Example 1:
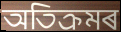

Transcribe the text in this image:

অতিক্ৰমৰ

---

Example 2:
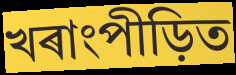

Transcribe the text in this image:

খৰাংপীড়িত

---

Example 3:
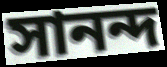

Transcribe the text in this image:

সানন্দ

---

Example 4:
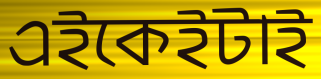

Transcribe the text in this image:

এইকেইটাই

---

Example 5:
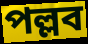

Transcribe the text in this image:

পল্লব